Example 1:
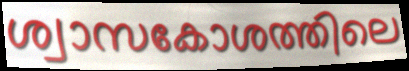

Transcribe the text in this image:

ശ്വാസകോശത്തിലെ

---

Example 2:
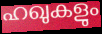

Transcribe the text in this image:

ഹഖുകളും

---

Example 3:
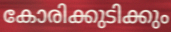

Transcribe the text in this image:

കോരിക്കുടിക്കും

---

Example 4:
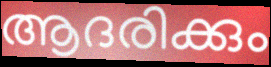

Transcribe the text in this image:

ആദരിക്കും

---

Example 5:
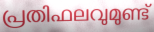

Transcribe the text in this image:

പ്രതിഫലവുമുണ്ട്